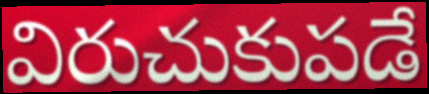
విరుచుకుపడే